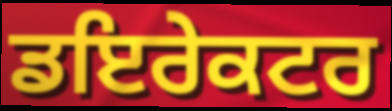
ਡਇਰੇਕਟਰ